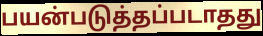
பயன்படுத்தப்படாதது